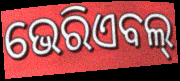
ଭେରିଏବଲ୍